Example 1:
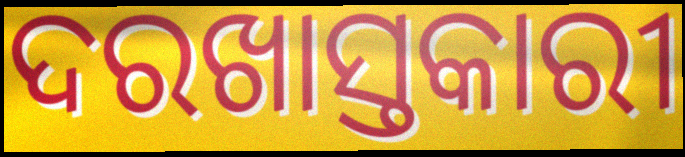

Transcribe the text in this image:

ଦରଖାସ୍ତକାରୀ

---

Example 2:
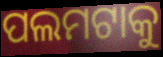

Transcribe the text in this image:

ପଲମଟାକୁ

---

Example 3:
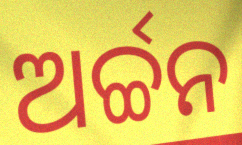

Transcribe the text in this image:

ଅର୍ଚ୍ଚନ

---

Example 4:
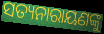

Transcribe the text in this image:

ସତ୍ୟନାରାୟଣଙ୍କୁ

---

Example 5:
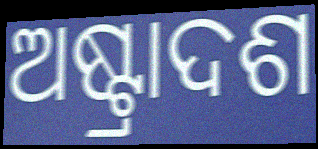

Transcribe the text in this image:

ଅଷ୍ଟ୍ରାଦଶ